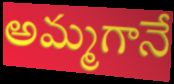
అమ్మగానే